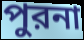
পুরনা